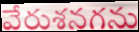
వేరుశనగను